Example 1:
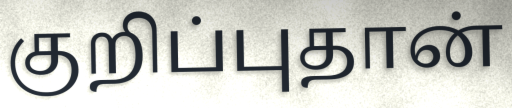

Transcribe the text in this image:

குறிப்புதான்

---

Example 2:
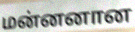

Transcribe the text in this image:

மன்னனான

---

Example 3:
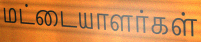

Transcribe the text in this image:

மட்டையாளர்கள்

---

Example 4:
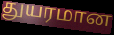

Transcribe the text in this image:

துயரமான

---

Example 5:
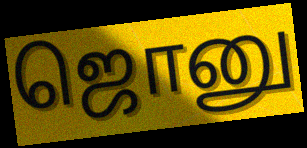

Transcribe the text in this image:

ஜொனு